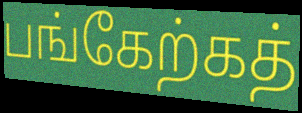
பங்கேற்கத்